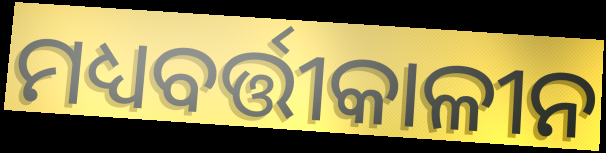
ମଧ୍ୟବର୍ତ୍ତୀକାଳୀନ